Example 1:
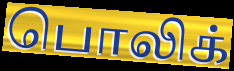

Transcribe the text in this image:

பொலிக்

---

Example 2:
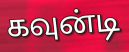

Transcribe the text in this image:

கவுன்டி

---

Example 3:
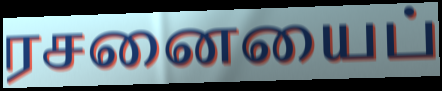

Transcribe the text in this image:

ரசனையைப்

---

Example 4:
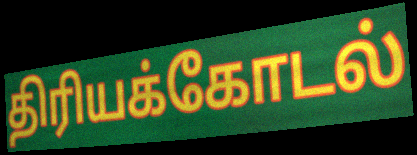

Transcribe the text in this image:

திரியக்கோடல்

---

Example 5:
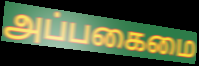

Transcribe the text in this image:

அப்பகைமை